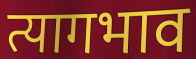
त्यागभाव